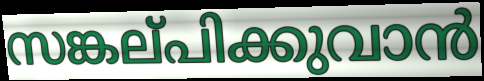
സങ്കല്‌പിക്കുവാൻ